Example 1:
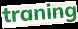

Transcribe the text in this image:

traning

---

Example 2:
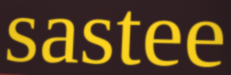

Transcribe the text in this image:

sastee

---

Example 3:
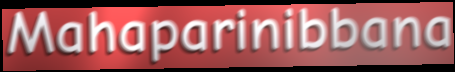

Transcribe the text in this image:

Mahaparinibbana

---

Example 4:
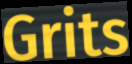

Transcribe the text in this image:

Grits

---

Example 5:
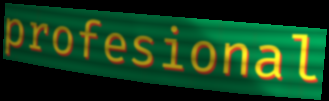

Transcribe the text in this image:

profesional